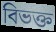
বিভক্ত